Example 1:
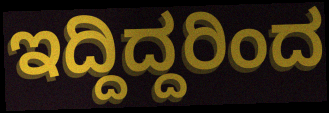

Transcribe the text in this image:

ಇದ್ದಿದ್ದರಿಂದ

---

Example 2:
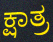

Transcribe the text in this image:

ಕ್ಷಾತ್ರ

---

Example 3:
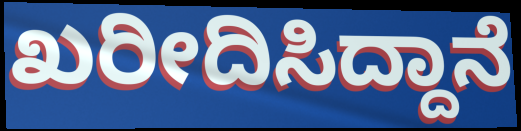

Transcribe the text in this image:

ಖರೀದಿಸಿದ್ದಾನೆ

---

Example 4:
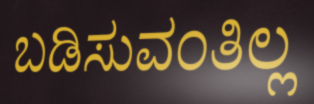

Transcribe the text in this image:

ಬಡಿಸುವಂತಿಲ್ಲ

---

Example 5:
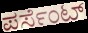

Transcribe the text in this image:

ಪರ್ಸೆಂಟ್